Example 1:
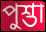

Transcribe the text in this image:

পুশ্তা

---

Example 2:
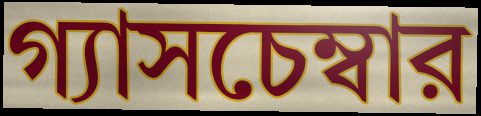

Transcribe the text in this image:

গ্যাসচেম্বার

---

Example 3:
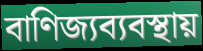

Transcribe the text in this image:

বাণিজ্যব্যবস্থায়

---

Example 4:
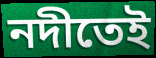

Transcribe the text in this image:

নদীতেই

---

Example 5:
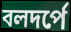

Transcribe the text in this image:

বলদর্পে